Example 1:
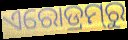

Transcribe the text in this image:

ଏରୋଡ୍ରମ୍‍ରୁ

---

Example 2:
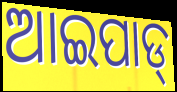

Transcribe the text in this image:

ଆଇପାଡ୍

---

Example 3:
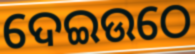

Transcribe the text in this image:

ଦେଇଉଠେ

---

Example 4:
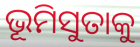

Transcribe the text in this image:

ଭୂମିସୁତାକୁ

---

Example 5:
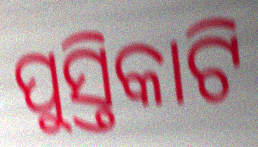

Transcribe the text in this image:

ପୁସ୍ତିକାଟି